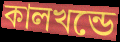
কালখন্ডে